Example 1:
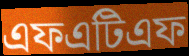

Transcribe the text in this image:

এফএটিএফ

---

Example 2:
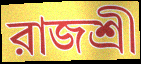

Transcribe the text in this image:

রাজশ্রী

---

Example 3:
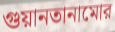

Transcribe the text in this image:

গুয়ানতানামোর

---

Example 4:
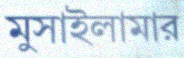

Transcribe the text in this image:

মুসাইলামার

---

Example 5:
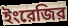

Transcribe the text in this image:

ইংরেজির